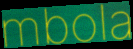
mbola